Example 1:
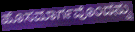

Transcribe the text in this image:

ಹೊಸಮಾರ್ಗವೊಂದನ್ನು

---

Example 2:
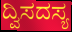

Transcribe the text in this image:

ದ್ವಿಸದಸ್ಯ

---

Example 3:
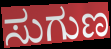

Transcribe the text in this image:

ಸುಗುಣ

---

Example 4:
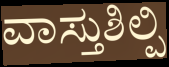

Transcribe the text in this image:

ವಾಸ್ತುಶಿಲ್ಪಿ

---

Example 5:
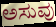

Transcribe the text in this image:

ಅಸುವು